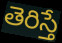
తెరిస్తే